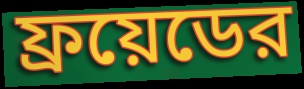
ফ্রয়েডের